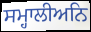
ਸਮ੍ਹਾਲੀਅਨਿ